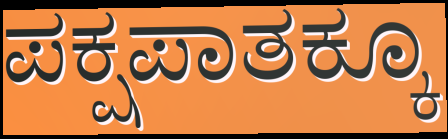
ಪಕ್ಷಪಾತಕ್ಕೂ